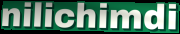
nilichimdi